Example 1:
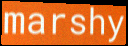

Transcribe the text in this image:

marshy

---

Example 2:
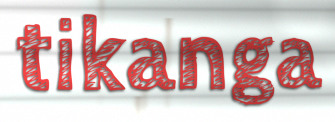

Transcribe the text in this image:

tikanga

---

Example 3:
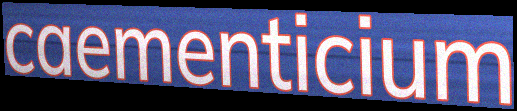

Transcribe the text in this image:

caementicium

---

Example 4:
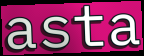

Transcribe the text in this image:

asta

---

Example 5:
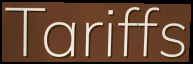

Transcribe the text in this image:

Tariffs